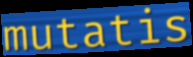
mutatis